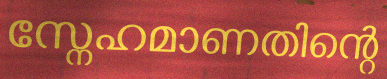
സ്നേഹമാണതിന്റെ